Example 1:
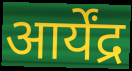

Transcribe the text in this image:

आर्येंद्र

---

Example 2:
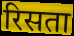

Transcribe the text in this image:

रिसता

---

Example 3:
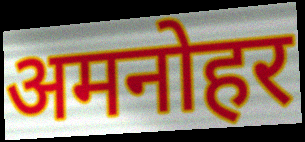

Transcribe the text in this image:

अमनोहर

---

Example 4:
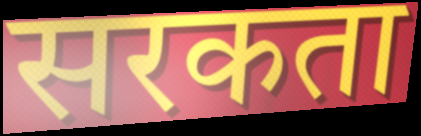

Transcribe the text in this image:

सरकता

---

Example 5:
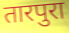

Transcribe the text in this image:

तारपुरा